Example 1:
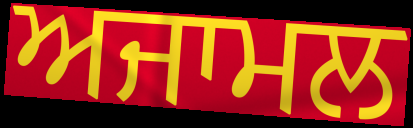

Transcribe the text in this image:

ਅਜਾਮਲ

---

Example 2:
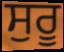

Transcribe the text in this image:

ਸੁਰੂ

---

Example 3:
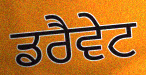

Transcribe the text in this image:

ਡਰੈਵੇਟ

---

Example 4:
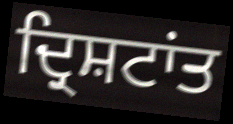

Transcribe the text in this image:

ਦ੍ਰਿਸ਼ਟਾਂਤ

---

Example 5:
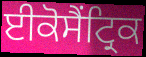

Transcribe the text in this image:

ਈਕੋਸੈਂਟ੍ਰਿਕ